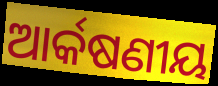
ଆର୍କଷଣୀୟ